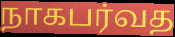
நாகபர்வத